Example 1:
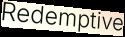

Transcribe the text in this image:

Redemptive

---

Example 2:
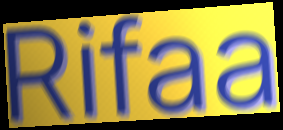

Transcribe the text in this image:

Rifaa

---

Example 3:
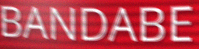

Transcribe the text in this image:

BANDABE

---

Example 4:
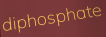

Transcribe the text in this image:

diphosphate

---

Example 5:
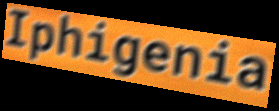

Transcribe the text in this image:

Iphigenia